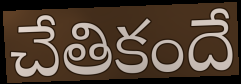
చేతికందే